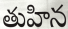
తుహిన